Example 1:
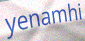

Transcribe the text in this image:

yenamhi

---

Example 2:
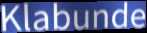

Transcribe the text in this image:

Klabunde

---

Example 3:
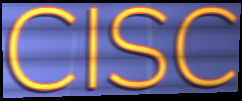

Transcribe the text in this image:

CISC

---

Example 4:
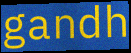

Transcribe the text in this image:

gandh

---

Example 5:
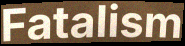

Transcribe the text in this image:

Fatalism